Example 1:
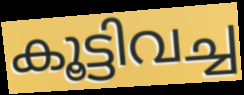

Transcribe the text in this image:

കൂട്ടിവച്ച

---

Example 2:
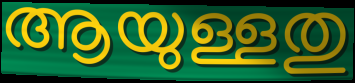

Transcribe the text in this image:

ആയുള്ളതു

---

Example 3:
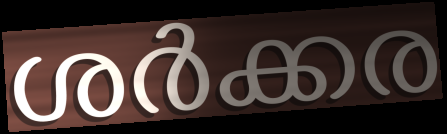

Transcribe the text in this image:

ശർക്കര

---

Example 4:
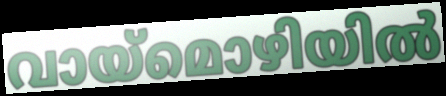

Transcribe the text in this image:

വായ്മൊഴിയിൽ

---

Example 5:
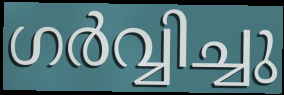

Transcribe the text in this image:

ഗർവ്വിച്ചു